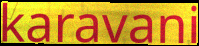
karavani